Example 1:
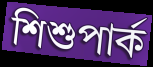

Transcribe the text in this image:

শিশুপার্ক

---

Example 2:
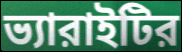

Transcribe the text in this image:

ভ্যারাইটির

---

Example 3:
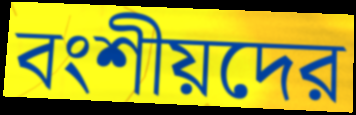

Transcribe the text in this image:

বংশীয়দের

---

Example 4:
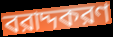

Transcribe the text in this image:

বরাদ্দকরণ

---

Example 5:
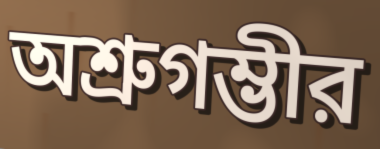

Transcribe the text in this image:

অশ্রুগম্ভীর